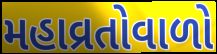
મહાવ્રતોવાળો